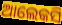
ଆଲେକସି